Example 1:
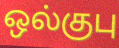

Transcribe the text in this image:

ஒல்குபு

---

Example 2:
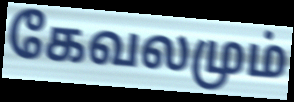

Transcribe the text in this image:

கேவலமும்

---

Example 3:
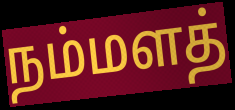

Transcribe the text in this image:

நம்மளத்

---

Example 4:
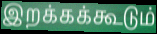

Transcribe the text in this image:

இறக்கக்கூடும்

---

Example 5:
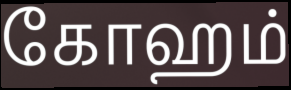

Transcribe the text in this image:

கோஹம்